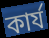
কাৰ্য